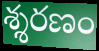
శ్శరణం